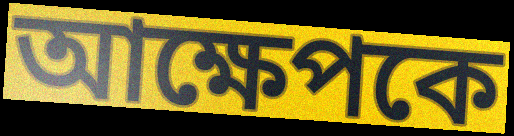
আক্ষেপকে